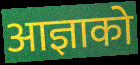
आज्ञाको